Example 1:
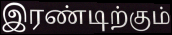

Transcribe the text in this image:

இரண்டிற்கும்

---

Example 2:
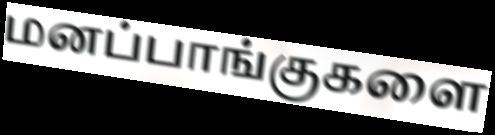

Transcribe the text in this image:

மனப்பாங்குகளை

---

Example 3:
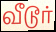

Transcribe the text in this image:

வீடூர்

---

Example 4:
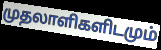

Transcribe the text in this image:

முதலாளிகளிடமும்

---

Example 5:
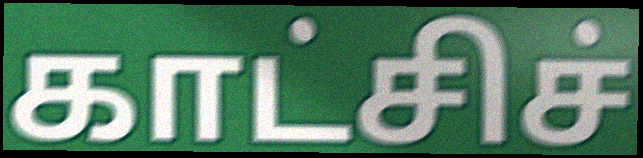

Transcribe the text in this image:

காட்சிச்